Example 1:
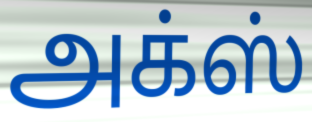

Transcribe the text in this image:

அக்ஸ்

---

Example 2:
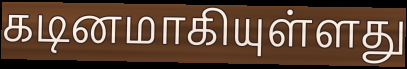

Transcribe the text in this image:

கடினமாகியுள்ளது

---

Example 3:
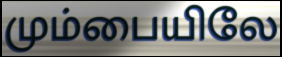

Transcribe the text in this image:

மும்பையிலே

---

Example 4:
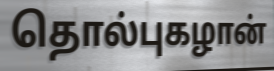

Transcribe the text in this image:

தொல்புகழான்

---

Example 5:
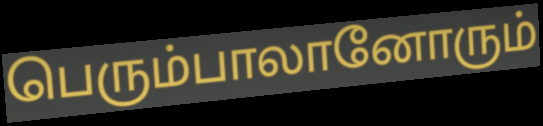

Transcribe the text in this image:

பெரும்பாலானோரும்